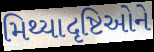
મિથ્યાદૃષ્ટિઓને